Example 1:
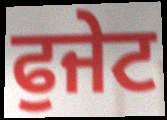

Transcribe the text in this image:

ਫੁਜੇਟ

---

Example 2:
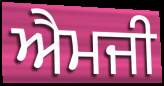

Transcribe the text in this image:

ਐਮਜੀ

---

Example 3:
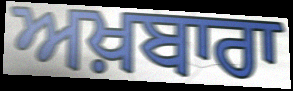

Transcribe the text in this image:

ਅਖ਼ਬਾਰਾ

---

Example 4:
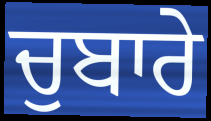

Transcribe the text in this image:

ਚੁਬਾਰੇ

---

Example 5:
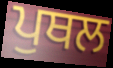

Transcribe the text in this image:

ਪੁਥਲ